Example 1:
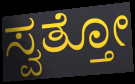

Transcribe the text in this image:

ಸ್ವತ್ತೋ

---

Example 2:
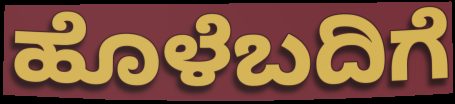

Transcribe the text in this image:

ಹೊಳೆಬದಿಗೆ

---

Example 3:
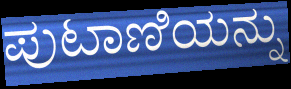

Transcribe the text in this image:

ಪುಟಾಣಿಯನ್ನು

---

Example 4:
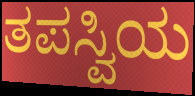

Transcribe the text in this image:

ತಪಸ್ವಿಯ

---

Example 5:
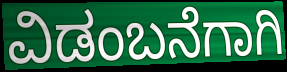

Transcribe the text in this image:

ವಿಡಂಬನೆಗಾಗಿ